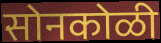
सोनकोळी